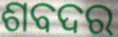
ଶବଦର